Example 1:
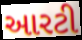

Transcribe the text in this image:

આરટી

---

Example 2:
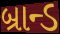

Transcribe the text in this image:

બ્રાન્ડ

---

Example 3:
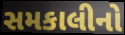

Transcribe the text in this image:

સમકાલીનો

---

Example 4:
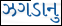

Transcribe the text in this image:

ઝગડાનુ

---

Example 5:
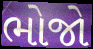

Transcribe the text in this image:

ભોજો